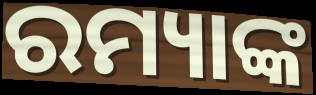
ରମ୍ୟାଙ୍କ